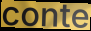
conte